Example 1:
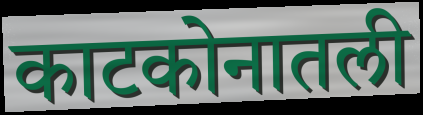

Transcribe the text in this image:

काटकोनातली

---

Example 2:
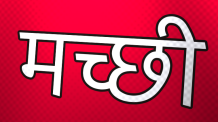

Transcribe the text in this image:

मच्छी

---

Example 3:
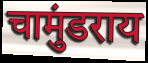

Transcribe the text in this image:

चामुंडराय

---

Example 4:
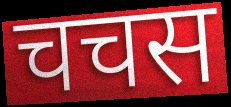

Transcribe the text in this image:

चचस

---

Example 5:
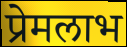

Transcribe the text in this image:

प्रेमलाभ